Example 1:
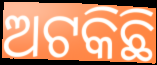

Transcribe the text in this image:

ଅଟକିଛି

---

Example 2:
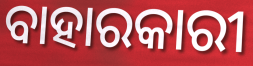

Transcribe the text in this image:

ବାହାରକାରୀ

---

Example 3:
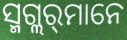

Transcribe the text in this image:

ସ୍ମଗ୍ଲର୍‌ମାନେ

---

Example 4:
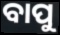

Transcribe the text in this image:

ବାପୁ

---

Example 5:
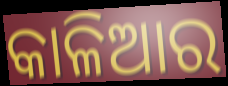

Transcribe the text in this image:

କାଳିଆର